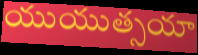
యుయుత్సయా